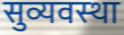
सुव्यवस्था